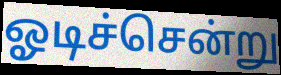
ஓடிச்சென்று